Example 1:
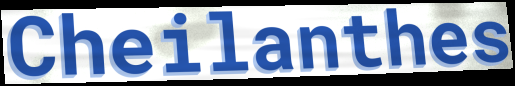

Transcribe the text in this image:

Cheilanthes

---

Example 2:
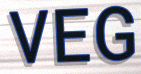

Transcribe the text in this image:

VEG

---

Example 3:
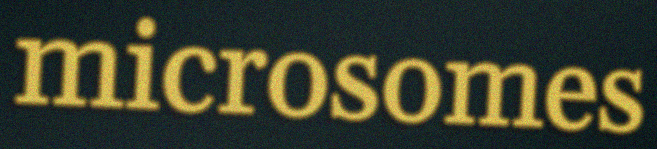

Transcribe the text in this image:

microsomes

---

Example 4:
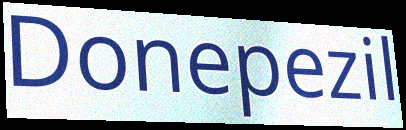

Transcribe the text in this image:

Donepezil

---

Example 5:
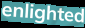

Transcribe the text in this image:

enlighted